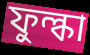
ফুল্কা